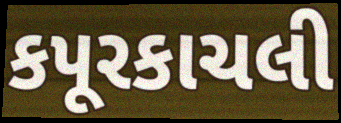
કપૂરકાચલી